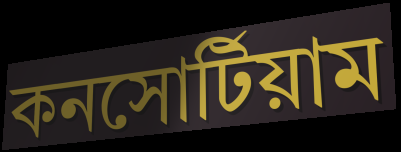
কনসোর্টিয়াম